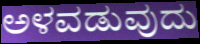
ಅಳವಡುವುದು